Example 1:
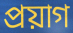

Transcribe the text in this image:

প্রয়াগ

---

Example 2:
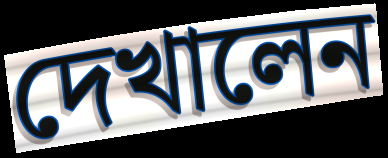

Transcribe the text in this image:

দেখালেন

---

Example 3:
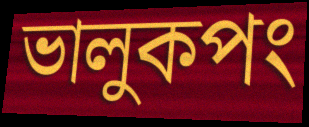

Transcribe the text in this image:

ভালুকপং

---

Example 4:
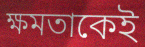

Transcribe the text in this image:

ক্ষমতাকেই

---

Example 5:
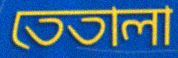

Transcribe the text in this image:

তেতালা